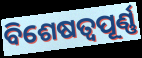
ବିଶେଷତ୍ୱପୂର୍ଣ୍ଣ